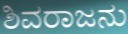
ಶಿವರಾಜನು